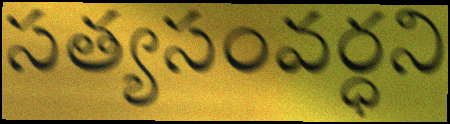
సత్యసంవర్ధని